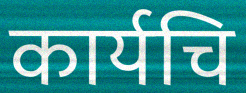
कार्यचि